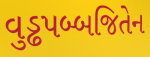
વુડ્ઢપબ્બજિતેન